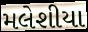
મલેશીયા